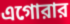
এগোরার